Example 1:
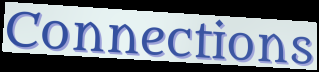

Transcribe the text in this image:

Connections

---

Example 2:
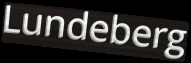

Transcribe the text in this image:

Lundeberg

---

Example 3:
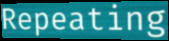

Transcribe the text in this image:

Repeating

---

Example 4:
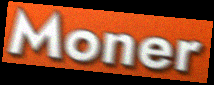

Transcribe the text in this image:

Moner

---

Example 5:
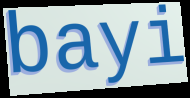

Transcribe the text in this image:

bayi